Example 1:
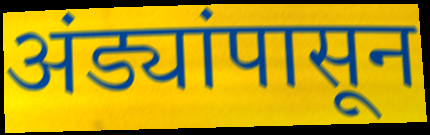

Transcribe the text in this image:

अंड्यांपासून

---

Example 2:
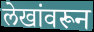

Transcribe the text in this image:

लेखांवरून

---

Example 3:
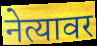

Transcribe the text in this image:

नेत्यावर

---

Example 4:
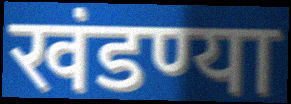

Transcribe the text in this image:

खंडण्या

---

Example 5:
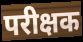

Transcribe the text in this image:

परीक्षक